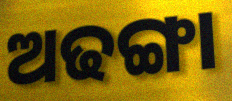
ଅଢଙ୍ଗା